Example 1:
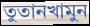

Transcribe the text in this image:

তুতানখামুন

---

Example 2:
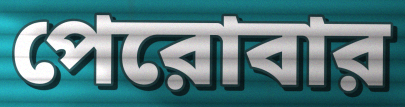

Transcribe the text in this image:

পেরোবার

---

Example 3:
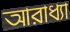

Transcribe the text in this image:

আরাধ্যা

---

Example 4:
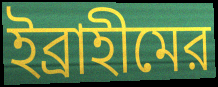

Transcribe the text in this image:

ইব্রাহীমের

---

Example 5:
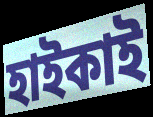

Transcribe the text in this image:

হাইকাই